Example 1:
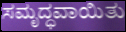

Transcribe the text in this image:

ಸಮೃದ್ಧವಾಯಿತು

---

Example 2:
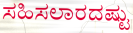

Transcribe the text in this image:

ಸಹಿಸಲಾರದಷ್ಟು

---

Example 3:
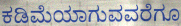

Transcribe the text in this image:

ಕಡಿಮೆಯಾಗುವವರೆಗೂ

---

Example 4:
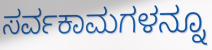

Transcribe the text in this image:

ಸರ್ವಕಾಮಗಳನ್ನೂ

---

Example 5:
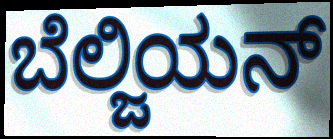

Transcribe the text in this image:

ಬೆಲ್ಜಿಯನ್